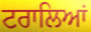
ਟਰਾਲਿਆਂ